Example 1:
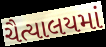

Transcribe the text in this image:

ચૈત્યાલયમાં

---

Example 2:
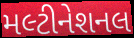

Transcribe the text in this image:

મલ્ટીનેશનલ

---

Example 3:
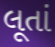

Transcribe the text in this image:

લૂતાં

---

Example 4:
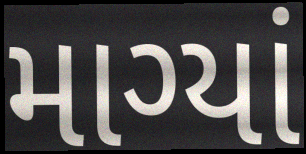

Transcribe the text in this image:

માગ્યાં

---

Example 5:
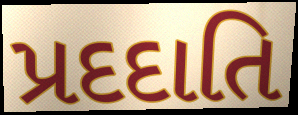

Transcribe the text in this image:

પ્રદદાતિ